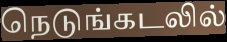
நெடுங்கடலில்